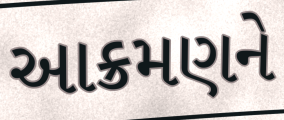
આક્રમણને